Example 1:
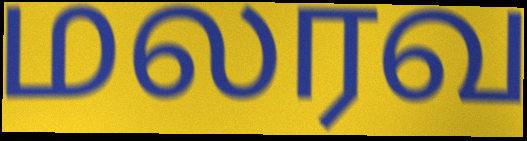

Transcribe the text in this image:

மலரவ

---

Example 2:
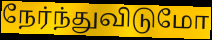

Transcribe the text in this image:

நேர்ந்துவிடுமோ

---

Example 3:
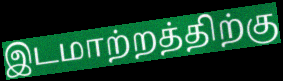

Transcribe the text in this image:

இடமாற்றத்திற்கு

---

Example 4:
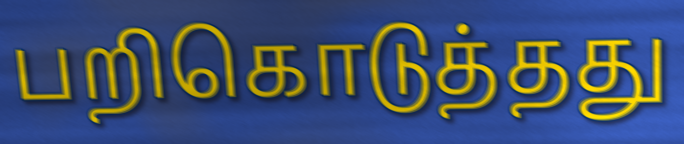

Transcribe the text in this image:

பறிகொடுத்தது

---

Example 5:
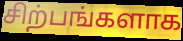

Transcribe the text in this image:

சிற்பங்களாக